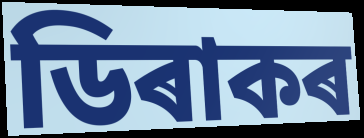
ডিৰাকৰ